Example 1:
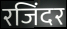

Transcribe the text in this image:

रजिंदर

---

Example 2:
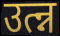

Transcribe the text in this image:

उत्न्न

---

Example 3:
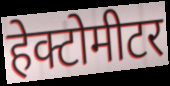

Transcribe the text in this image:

हेक्टोमीटर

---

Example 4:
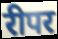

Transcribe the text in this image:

रीपर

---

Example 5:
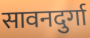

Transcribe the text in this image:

सावनदुर्गा